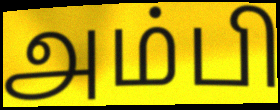
அம்பி